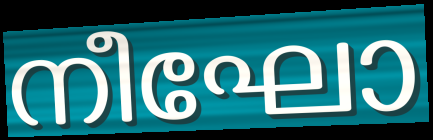
നീഘോ